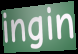
ingin